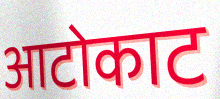
आटोकाट